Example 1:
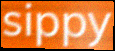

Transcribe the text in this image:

sippy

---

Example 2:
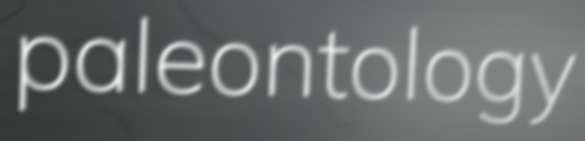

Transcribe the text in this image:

paleontology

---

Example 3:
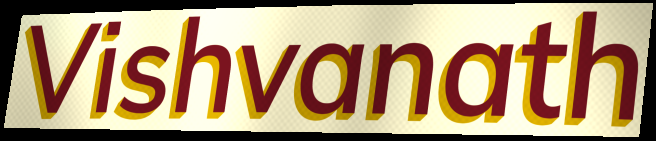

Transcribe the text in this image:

Vishvanath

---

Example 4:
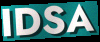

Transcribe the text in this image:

IDSA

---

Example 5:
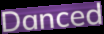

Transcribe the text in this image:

Danced